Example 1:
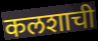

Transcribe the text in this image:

कलशाची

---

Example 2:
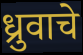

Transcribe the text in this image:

ध्रुवाचे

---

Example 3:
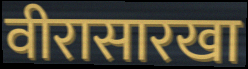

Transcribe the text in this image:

वीरासारखा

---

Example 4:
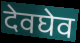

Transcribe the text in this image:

देवघेव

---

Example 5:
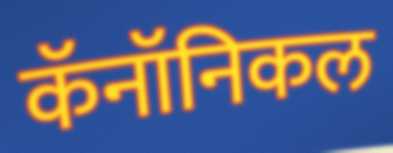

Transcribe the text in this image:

कॅनॉनिकल